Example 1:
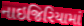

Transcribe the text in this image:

નાઇજિરિયામાં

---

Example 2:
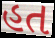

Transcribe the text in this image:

હત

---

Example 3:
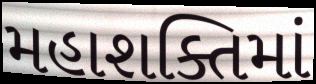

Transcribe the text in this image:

મહાશક્તિમાં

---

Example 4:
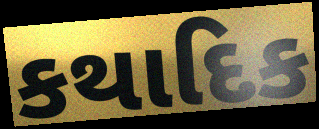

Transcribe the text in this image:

કથાદિક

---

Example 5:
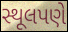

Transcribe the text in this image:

સ્થૂલપણે